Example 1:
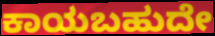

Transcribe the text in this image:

ಕಾಯಬಹುದೇ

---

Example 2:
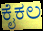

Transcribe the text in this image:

ಕೈಕಲ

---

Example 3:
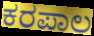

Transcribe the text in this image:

ಕರಪಾಲ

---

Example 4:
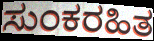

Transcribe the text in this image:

ಸುಂಕರಹಿತ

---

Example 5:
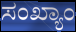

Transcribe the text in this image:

ಸಂಖ್ಯಾಂ